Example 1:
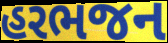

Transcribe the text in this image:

હરભજન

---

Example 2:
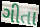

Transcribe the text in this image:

ગીતા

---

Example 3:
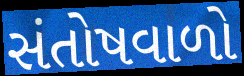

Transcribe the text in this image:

સંતોષવાળો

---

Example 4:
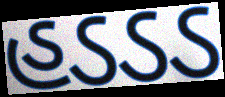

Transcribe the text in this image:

હડડડ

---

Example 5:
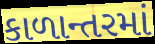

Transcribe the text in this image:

કાળાન્તરમાં